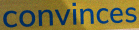
convinces